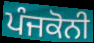
ਪੰਜਕੋਨੀ